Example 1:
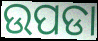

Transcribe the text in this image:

ଉପଡା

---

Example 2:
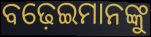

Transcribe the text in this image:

ବଢ଼େଇମାନଙ୍କୁ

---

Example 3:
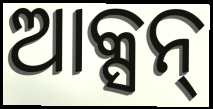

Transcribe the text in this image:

ଆକ୍ସନ୍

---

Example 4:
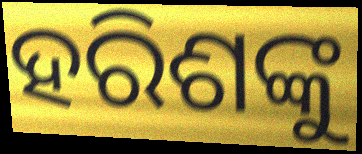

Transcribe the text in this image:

ହରିଶଙ୍କୁ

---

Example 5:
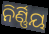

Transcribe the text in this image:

ନିର୍ଣ୍ଣିୟ